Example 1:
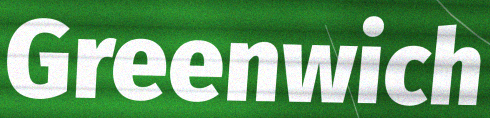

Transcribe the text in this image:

Greenwich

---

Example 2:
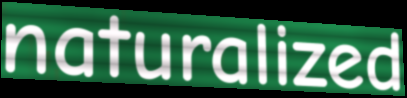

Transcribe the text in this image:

naturalized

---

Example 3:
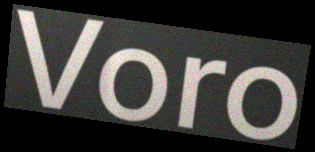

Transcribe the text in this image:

Voro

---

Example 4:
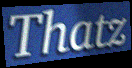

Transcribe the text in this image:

Thatz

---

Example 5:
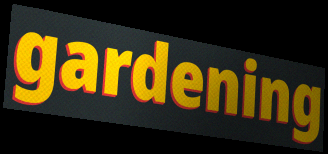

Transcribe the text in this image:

gardening